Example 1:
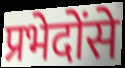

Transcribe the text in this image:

प्रभेदोंसे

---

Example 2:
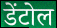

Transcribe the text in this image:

डेंटोल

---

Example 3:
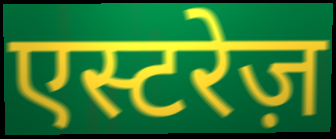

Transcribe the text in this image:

एस्टरेज़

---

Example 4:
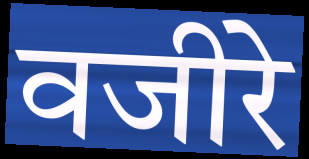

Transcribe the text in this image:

वजीरे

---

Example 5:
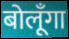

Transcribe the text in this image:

बोलूँगा